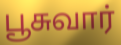
பூசுவார்